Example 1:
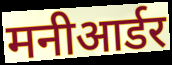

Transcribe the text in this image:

मनीआर्डर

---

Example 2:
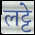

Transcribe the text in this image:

लट्टे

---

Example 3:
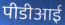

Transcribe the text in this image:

पीडीआई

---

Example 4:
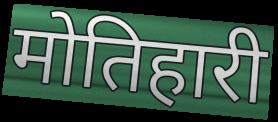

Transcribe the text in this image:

मोतिहारी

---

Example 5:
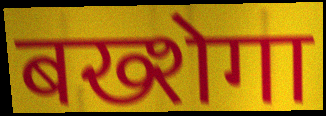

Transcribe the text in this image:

बख्शेगा